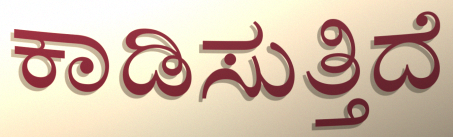
ಕಾಡಿಸುತ್ತಿದೆ